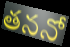
తననో